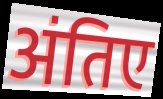
अंतिए